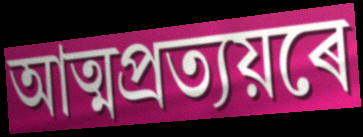
আত্মপ্ৰত্যয়ৰে